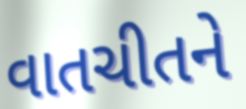
વાતચીતને